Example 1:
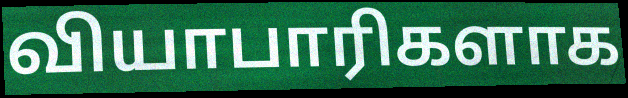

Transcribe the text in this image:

வியாபாரிகளாக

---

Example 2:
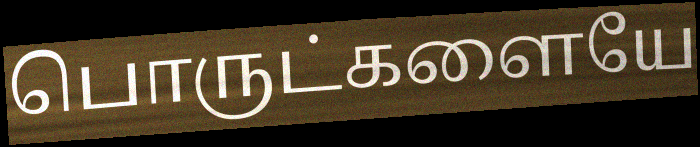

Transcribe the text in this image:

பொருட்களையே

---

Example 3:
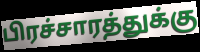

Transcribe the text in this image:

பிரச்சாரத்துக்கு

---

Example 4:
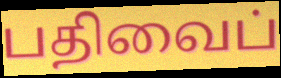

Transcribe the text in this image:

பதிவைப்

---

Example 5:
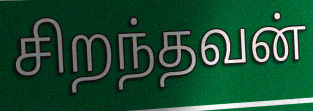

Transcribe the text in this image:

சிறந்தவன்